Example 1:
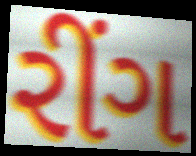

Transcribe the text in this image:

રીંગ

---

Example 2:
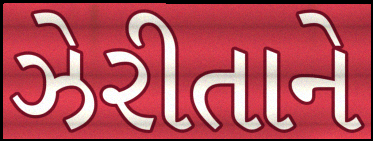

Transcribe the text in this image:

ઝેરીતાને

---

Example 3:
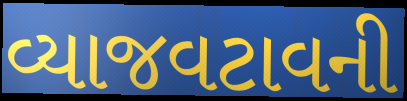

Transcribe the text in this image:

વ્યાજવટાવની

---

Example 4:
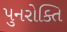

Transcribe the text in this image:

પુનરોક્તિ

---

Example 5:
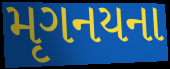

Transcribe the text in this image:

મૃગનયના